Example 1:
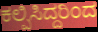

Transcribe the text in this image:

ಕಲ್ಪಿಸಿದ್ದರಿಂದ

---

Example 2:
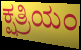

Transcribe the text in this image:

ಕ್ಷತ್ರಿಯಂ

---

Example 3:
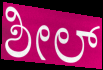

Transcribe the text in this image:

ಶೀಲ್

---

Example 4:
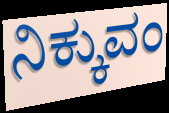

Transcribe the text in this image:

ನಿಕ್ಕುವಂ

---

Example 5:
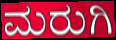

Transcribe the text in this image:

ಮರುಗಿ